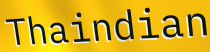
Thaindian